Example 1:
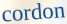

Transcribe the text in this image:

cordon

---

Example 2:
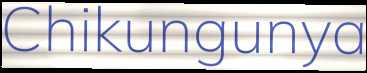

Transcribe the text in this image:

Chikungunya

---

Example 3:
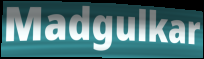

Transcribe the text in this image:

Madgulkar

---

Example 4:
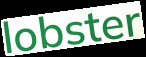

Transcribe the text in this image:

lobster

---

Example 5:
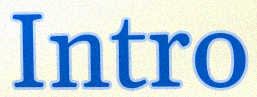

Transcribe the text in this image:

Intro